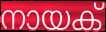
നായക്